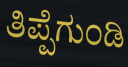
ತಿಪ್ಪೆಗುಂಡಿ